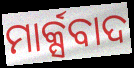
ମାର୍କ୍ସବାଦ